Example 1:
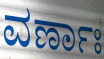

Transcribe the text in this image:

ವರ್ಣಾಃ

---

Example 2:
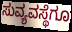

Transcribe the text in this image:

ಸುವ್ಯವಸ್ಥೆಗೂ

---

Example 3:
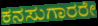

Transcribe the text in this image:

ಕನಸುಗಾರರೇ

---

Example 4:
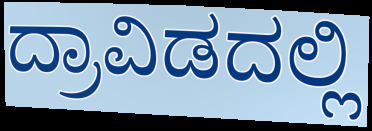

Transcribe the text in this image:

ದ್ರಾವಿಡದಲ್ಲಿ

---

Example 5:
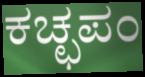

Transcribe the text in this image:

ಕಚ್ಛಪಂ